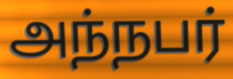
அந்நபர்